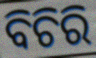
ବିଚିରି